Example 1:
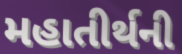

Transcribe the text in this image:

મહાતીર્થની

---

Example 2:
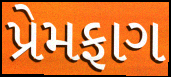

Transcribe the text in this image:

પ્રેમફાગ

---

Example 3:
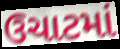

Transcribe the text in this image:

ઉચાટમાં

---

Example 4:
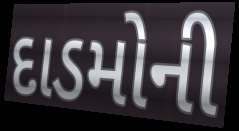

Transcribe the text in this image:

દાડમોની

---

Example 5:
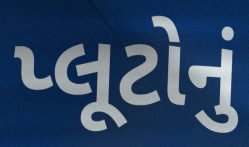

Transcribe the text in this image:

પ્લૂટોનું